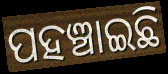
ପହଞ୍ଚାଇଛି